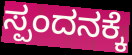
ಸ್ಪಂದನಕ್ಕೆ